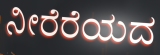
ನೀರೆರೆಯದ